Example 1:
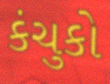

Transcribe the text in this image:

કંચુકો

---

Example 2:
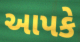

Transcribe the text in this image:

આપકે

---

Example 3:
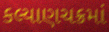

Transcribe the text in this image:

કલ્યાણચક્રમાં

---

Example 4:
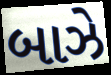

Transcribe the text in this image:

બાઝે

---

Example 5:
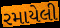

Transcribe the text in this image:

રમાયેલી